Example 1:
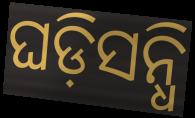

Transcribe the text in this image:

ଘଡ଼ିସନ୍ଧି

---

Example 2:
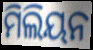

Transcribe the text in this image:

ମିଲିୟନ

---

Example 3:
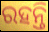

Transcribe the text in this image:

ରହନ୍ତି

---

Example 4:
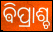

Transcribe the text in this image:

ଵିପ୍ରାଶ୍ଚ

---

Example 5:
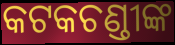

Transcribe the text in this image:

କଟକଚଣ୍ଡୀଙ୍କ